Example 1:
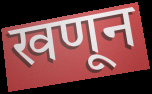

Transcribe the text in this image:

खणून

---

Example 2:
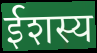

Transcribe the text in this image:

ईशस्य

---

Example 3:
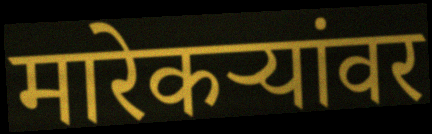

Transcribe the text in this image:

मारेकऱ्यांवर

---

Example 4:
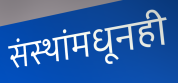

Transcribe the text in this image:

संस्थांमधूनही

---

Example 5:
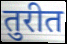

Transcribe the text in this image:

तुरीत